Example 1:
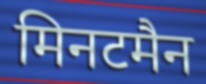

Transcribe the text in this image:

मिनटमैन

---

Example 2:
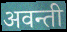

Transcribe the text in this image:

अवन्ती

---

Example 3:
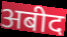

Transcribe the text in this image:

अबीद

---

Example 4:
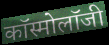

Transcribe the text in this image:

कॉस्मोलॉजी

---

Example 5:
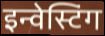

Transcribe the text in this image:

इन्वेस्टिंग